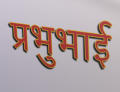
प्रभुभाई